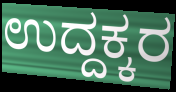
ಉದ್ದಕ್ಕರ